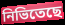
নিভিতেছে